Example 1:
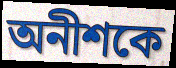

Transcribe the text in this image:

অনীশকে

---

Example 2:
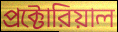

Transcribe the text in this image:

প্রক্টোরিয়াল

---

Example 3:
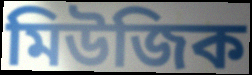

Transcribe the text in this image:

মিউজিক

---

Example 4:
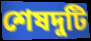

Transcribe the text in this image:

শেষদুটি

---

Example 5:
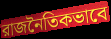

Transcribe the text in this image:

রাজনৈতিকভাবে